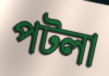
পটলা